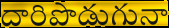
దారిపొడుగునా